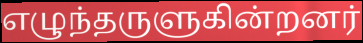
எழுந்தருளுகின்றனர்